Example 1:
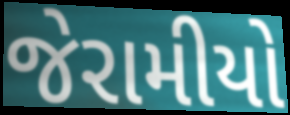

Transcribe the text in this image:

જેરામીયો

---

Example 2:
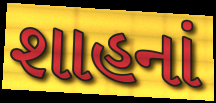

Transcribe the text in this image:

શાહનાં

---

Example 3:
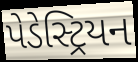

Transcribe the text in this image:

પેડેસ્ટ્રિયન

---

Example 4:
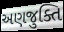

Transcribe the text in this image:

અણજુક્તિ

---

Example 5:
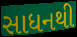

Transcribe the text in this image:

સાધનથી